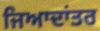
ਜਿਆਦਾਂਤਰ